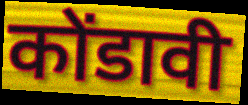
कोंडावी